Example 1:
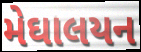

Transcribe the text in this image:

મેઘાલયન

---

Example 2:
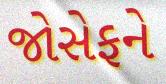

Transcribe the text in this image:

જોસેફને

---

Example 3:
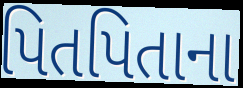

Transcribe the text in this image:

પિતપિતાના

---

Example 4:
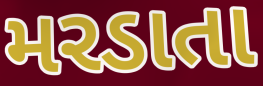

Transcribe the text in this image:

મરડાતા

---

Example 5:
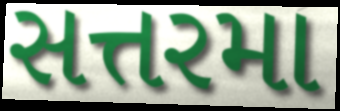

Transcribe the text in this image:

સત્તરમા